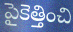
పైకెత్తించి